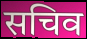
सचिव